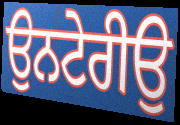
ਉਨਟੇਰੀਉ